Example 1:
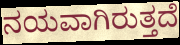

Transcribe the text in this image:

ನಯವಾಗಿರುತ್ತದೆ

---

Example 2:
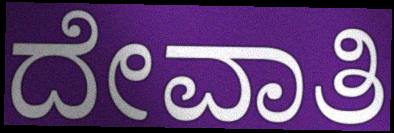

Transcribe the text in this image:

ದೇವಾತಿ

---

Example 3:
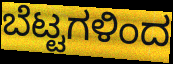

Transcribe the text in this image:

ಬೆಟ್ಟಗಳಿಂದ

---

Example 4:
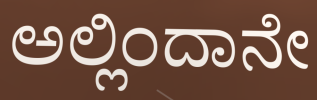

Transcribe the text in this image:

ಅಲ್ಲಿಂದಾನೇ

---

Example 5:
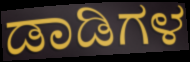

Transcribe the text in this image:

ಡಾಡಿಗಳ